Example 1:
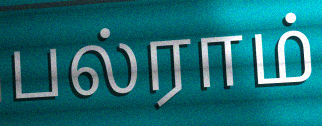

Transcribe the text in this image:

பல்ராம்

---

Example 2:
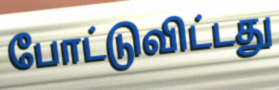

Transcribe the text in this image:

போட்டுவிட்டது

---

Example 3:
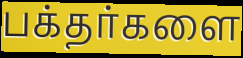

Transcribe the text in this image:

பக்தர்களை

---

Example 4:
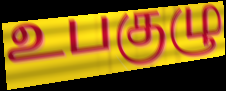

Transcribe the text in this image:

உபகுழு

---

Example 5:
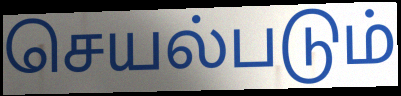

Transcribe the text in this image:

செயல்படும்